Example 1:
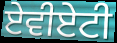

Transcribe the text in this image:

ਏਵੀਏਟੀ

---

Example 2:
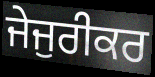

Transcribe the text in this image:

ਜੇਜੁਰੀਕਰ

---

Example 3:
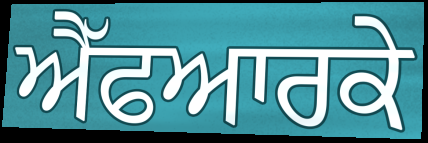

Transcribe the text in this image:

ਐੱਫਆਰਕੇ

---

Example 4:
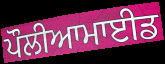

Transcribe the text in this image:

ਪੌਲੀਆਮਾਈਡ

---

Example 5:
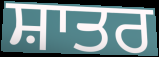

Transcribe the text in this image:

ਸ਼ਾਤਰ